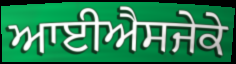
ਆਈਐਸਜੇਕੇ